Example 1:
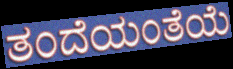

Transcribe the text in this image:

ತಂದೆಯಂತೆಯೆ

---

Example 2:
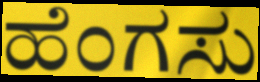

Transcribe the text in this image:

ಹೆಂಗಸು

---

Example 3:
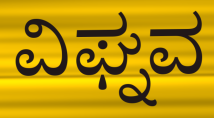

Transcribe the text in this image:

ವಿಘ್ನವ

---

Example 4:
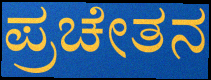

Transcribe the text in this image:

ಪ್ರಚೇತನ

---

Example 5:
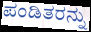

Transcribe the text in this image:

ಪಂಡಿತರನ್ನು